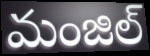
మంజిల్